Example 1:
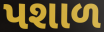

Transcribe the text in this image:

પશાળ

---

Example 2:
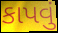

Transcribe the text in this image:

કાપવું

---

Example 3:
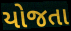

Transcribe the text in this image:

યોજતા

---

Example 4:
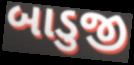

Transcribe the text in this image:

બાડુજી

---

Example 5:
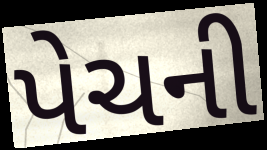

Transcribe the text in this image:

પેચની